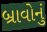
બ્રાવોનું